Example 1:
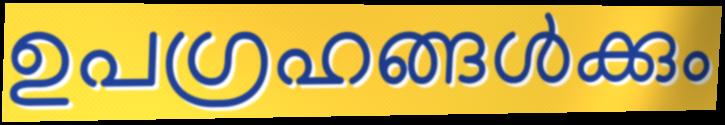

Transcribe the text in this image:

ഉപഗ്രഹങ്ങൾക്കും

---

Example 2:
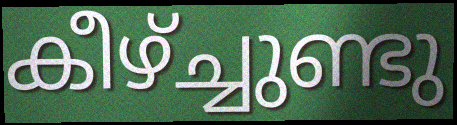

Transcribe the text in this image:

കീഴ്ച്ചുണ്ടു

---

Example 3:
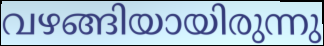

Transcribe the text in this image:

വഴങ്ങിയായിരുന്നു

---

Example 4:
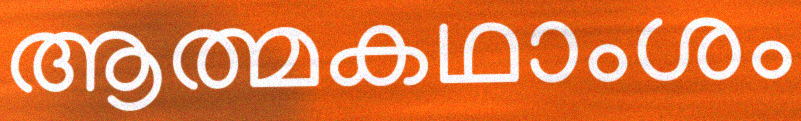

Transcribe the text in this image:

ആത്മകഥാംശം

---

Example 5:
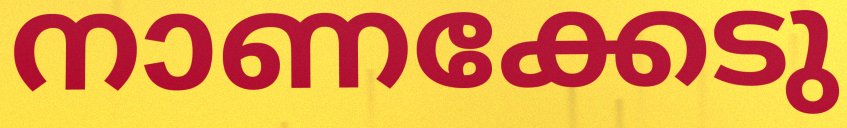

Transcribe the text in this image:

നാണക്കേടു